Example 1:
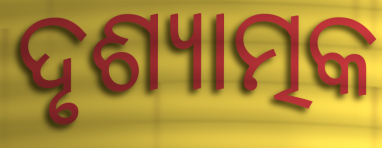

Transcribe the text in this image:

ଦୃଶ୍ୟାତ୍ମକ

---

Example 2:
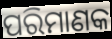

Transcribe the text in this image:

ପରିମାଣକ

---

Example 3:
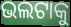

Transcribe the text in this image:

ଭଲଟାକୁ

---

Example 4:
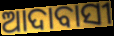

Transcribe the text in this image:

ଆଦାବାସୀ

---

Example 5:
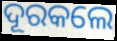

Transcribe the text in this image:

ଦୂରକଲେ